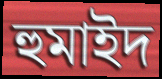
হুমাইদ